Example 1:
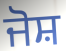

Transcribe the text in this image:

ਜੋਸ਼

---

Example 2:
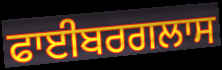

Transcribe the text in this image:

ਫਾਈਬਰਗਲਾਸ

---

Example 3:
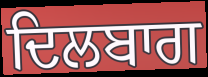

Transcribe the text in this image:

ਦਿਲਬਾਗ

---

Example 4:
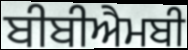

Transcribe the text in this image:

ਬੀਬੀਐਮਬੀ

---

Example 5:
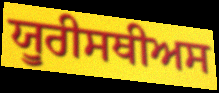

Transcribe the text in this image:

ਯੂਰੀਸਥੀਅਸ